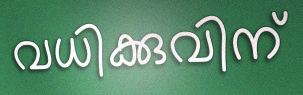
വധിക്കുവിന്